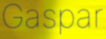
Gaspar